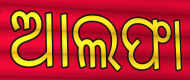
ଆଲଫା